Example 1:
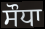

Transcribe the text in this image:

ਸੌਧਾ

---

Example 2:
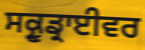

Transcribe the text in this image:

ਸਕ੍ਰੂਡ੍ਰਾਈਵਰ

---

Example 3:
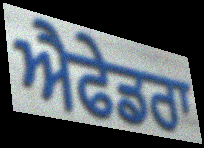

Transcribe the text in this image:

ਐਫੇਡਰਾ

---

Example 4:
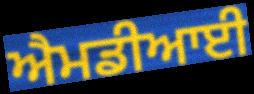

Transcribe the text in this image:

ਐਮਡੀਆਈ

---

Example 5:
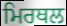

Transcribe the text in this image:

ਮਿਰਥਲ